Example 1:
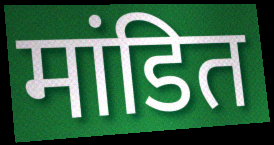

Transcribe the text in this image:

मांडित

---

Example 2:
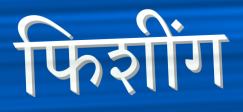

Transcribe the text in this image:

फिशींग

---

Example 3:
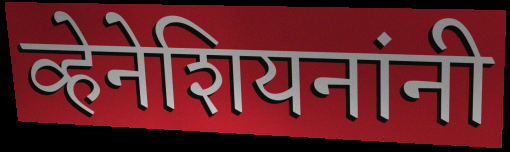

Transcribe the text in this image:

व्हेनेशियनांनी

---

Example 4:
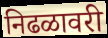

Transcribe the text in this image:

निढळावरी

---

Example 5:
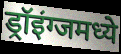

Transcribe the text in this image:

ड्रॉइंग्जमध्ये